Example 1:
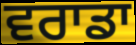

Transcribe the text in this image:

ਵਰਾਡਾ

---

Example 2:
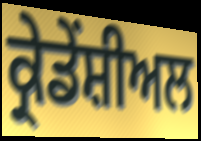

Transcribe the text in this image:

ਕ੍ਰੇਡੇਂਸ਼ੀਅਲ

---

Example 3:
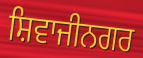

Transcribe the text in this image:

ਸ਼ਿਵਾਜੀਨਗਰ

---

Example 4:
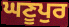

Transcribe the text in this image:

ਘਣੂਪੁਰ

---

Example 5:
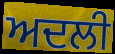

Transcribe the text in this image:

ਅਦਲੀ